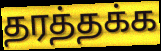
தரத்தக்க